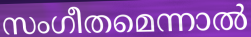
സംഗീതമെന്നാൽ